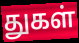
துகள்